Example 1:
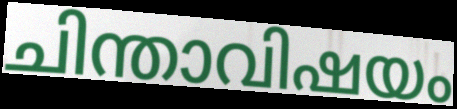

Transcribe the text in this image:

ചിന്താവിഷയം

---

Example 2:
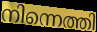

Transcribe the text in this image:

നിന്നെത്തി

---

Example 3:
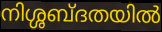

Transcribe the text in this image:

നിശ്ശബ്ദതയിൽ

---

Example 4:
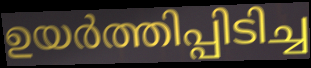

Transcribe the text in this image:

ഉയർത്തിപ്പിടിച്ച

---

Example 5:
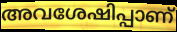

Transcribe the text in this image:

അവശേഷിപ്പാണ്